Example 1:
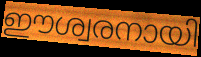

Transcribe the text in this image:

ഈശ്വരനായി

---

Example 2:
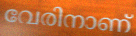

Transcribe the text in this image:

വേരിനാണ്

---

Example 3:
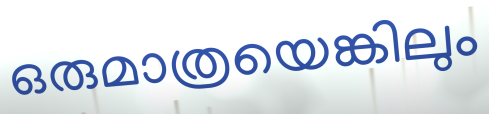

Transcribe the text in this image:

ഒരുമാത്രയെങ്കിലും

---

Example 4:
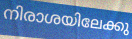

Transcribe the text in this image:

നിരാശയിലേക്കു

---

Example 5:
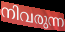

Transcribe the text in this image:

നിവരുന്ന